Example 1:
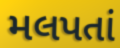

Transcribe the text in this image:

મલપતાં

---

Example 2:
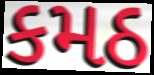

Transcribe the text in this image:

કમઠ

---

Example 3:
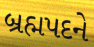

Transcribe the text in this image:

બ્રહ્મપદને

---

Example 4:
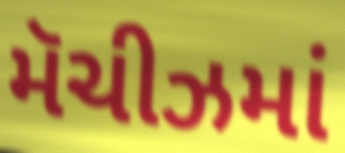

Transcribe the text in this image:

મૅચીઝમાં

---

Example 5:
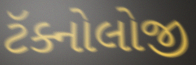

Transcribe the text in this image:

ટૅક્નોલોજી